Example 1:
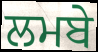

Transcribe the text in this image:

ਲਮਬੇ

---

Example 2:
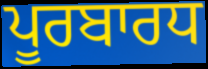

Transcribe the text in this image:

ਪੂਰਬਾਰਧ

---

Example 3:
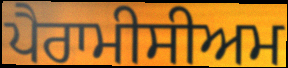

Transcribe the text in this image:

ਪੈਰਾਮੀਸੀਅਮ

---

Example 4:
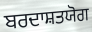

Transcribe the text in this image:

ਬਰਦਾਸ਼ਤਯੋਗ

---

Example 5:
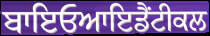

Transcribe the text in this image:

ਬਾਇਓਆਇਡੈਂਟੀਕਲ